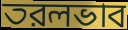
তরলভাব